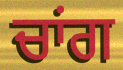
ਚਾਂਗ